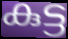
കുട്ട